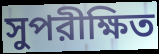
সুপরীক্ষিত